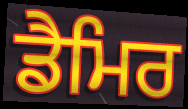
ਡੈਮਿਰ